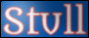
Stull